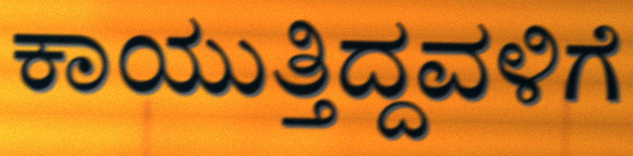
ಕಾಯುತ್ತಿದ್ದವಳಿಗೆ